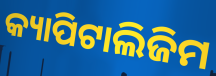
କ୍ୟାପିଟାଲିଜିମ